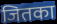
जितका